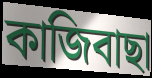
কাজিবাছা